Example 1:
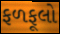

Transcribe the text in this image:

ફળફૂલો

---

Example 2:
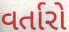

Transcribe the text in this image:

વર્તારો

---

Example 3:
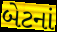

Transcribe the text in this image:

બેટનાં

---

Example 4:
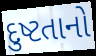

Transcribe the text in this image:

દુષ્ટતાનો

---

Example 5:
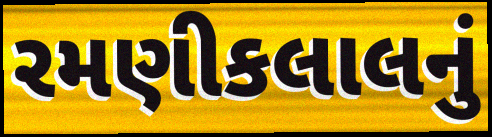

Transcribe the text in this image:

રમણીકલાલનું